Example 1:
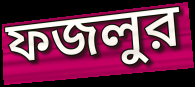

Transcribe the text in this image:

ফজলুর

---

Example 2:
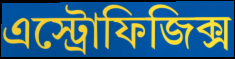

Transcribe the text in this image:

এস্ট্রোফিজিক্স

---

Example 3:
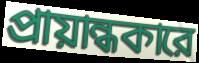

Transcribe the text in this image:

প্রায়ান্ধকারে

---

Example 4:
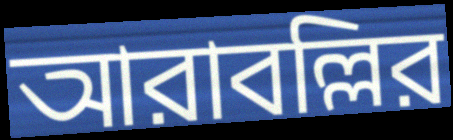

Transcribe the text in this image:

আরাবল্লির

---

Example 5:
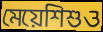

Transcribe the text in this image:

মেয়েশিশুও